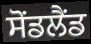
ਸੋਂਡਲੈਂਡ